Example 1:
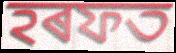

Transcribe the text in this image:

হৰফত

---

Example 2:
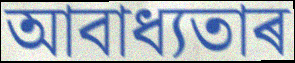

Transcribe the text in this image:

আবাধ্যতাৰ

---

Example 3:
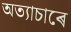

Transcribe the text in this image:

অত্যাচাৰে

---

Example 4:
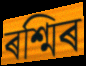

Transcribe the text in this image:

ৰশ্মিৰ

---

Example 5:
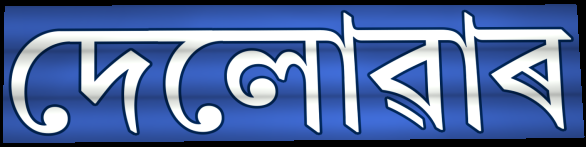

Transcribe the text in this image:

দেলোৱাৰ